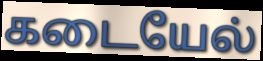
கடையேல்